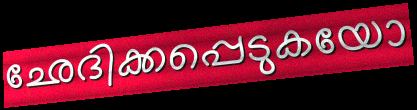
ഛേദിക്കപ്പെടുകയോ